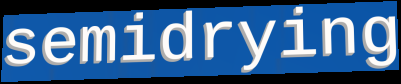
semidrying